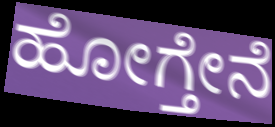
ಹೋಗ್ತೇನೆ